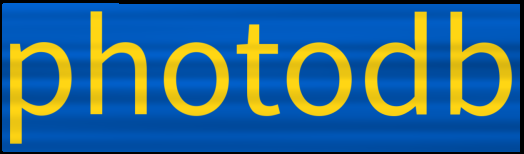
photodb